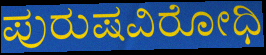
ಪುರುಷವಿರೋಧಿ